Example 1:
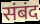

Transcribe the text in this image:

संबंद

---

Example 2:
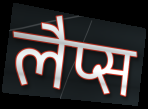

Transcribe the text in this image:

लैप्स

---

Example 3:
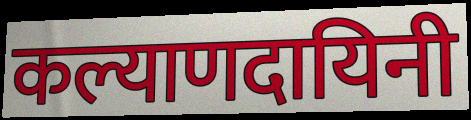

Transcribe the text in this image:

कल्याणदायिनी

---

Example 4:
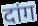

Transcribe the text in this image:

दांग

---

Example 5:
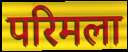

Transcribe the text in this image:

परिमला